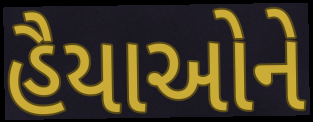
હૈયાઓને